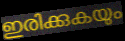
ഇരിക്കുകയും